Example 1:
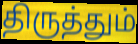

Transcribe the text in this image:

திருத்தும்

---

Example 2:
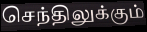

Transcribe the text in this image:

செந்திலுக்கும்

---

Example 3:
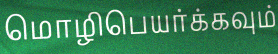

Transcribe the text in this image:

மொழிபெயர்க்கவும்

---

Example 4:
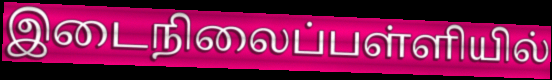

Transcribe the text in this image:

இடைநிலைப்பள்ளியில்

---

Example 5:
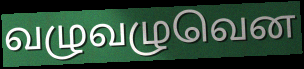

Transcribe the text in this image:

வழுவழுவென